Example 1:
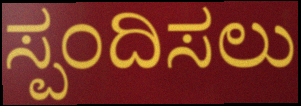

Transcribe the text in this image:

ಸ್ಪಂದಿಸಲು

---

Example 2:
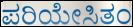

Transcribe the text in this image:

ಪರಿಯೇಸಿತಂ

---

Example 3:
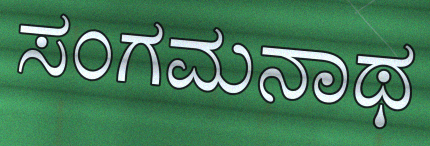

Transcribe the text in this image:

ಸಂಗಮನಾಥ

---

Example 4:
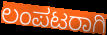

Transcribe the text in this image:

ಲಂಪಟರಾಗಿ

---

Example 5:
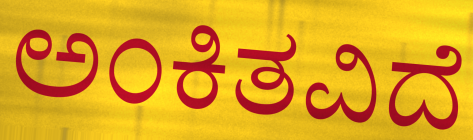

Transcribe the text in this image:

ಅಂಕಿತವಿದೆ